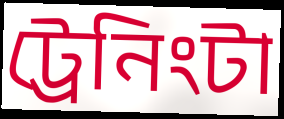
ট্রেনিংটা